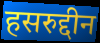
हसरुद्दीन